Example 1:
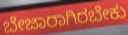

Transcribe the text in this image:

ಬೇಜಾರಾಗಿರಬೇಕು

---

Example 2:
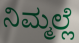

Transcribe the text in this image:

ನಿಮ್ಮಲ್ಲೆ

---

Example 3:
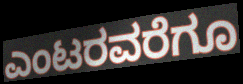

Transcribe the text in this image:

ಎಂಟರವರೆಗೂ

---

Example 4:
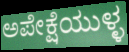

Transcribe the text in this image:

ಅಪೇಕ್ಷೆಯುಳ್ಳ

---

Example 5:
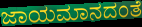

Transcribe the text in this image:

ಜಾಯಮಾನದಂತೆ